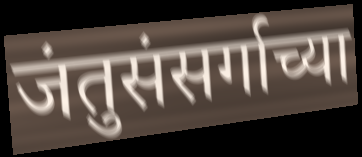
जंतुसंसर्गाच्या